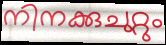
നിനക്കുചുറ്റും